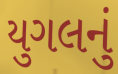
યુગલનું